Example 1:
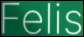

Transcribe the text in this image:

Felis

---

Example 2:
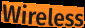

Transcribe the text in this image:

Wireless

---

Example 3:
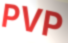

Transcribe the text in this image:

PVP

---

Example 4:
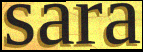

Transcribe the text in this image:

sara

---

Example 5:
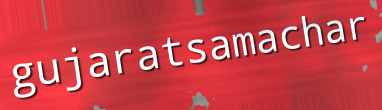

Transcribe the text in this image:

gujaratsamachar